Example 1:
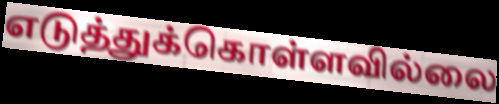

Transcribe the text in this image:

எடுத்துக்கொள்ளவில்லை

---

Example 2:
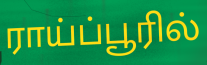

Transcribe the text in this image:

ராய்ப்பூரில்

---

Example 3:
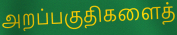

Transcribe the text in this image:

அறப்பகுதிகளைத்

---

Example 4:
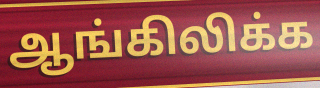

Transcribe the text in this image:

ஆங்கிலிக்க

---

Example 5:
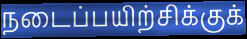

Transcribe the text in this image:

நடைப்பயிற்சிக்குக்